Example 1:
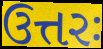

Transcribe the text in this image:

ઉત્તરઃ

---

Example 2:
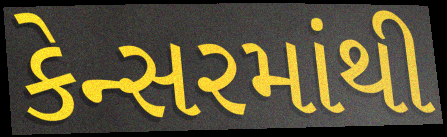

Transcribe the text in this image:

કેન્સરમાંથી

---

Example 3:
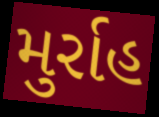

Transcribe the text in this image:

મુર્રાહ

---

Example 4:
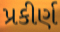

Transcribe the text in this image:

પ્રકીર્ણ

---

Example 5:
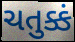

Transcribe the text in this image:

ચતુક્કં